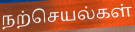
நற்செயல்கள்